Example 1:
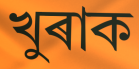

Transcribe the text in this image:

খুৰাক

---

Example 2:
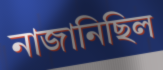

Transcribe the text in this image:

নাজানিছিল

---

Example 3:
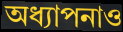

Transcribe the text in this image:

অধ্যাপনাও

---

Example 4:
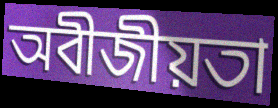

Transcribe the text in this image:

অবীজীয়তা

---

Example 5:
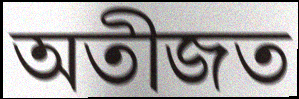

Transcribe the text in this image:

অতীজত